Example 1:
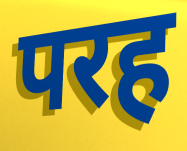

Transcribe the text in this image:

परह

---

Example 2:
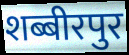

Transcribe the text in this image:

शब्‍बीरपुर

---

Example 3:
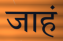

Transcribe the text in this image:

जाहं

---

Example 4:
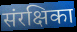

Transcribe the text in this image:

संरक्षिका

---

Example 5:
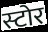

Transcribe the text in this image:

स्‍टोर